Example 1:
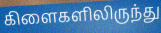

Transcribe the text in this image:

கிளைகளிலிருந்து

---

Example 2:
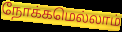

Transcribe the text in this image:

நோக்கமெல்லாம்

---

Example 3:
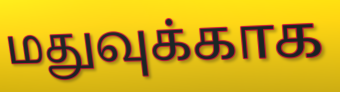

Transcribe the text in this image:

மதுவுக்காக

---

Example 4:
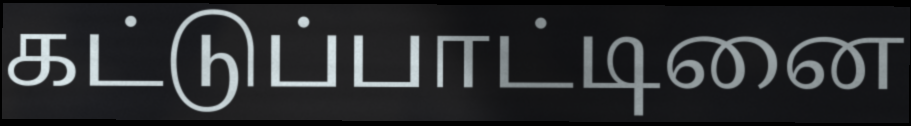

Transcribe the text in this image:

கட்டுப்பாட்டினை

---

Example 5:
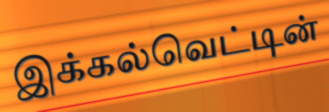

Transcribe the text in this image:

இக்கல்வெட்டின்